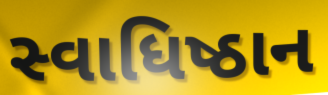
સ્વાધિષ્ઠાન